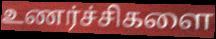
உணர்ச்சிகளை